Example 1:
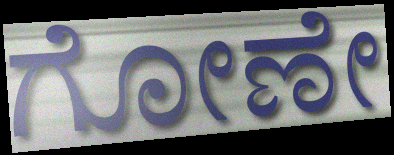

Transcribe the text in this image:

ಗೋಣೇ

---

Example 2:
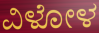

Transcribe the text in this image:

ವಿಳೋಳ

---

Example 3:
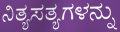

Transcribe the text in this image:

ನಿತ್ಯಸತ್ಯಗಳನ್ನು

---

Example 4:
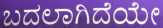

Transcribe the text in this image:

ಬದಲಾಗಿದೆಯೇ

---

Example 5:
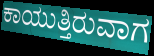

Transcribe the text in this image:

ಕಾಯುತ್ತಿರುವಾಗ